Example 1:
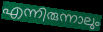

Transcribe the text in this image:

എന്നിരുന്നാലും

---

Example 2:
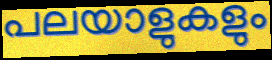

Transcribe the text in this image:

പലയാളുകളും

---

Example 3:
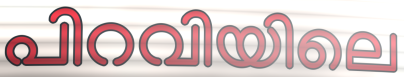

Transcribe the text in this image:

പിറവിയിലെ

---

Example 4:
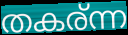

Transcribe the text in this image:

തകര്ന്ന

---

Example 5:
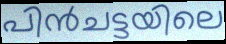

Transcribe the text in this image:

പിൻചട്ടയിലെ